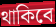
থাকিবে